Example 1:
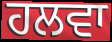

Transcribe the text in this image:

ਹਲਵਾ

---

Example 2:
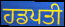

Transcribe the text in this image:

ਹਡਪਤੀ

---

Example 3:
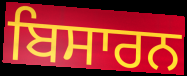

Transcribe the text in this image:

ਬਿਸਾਰਨ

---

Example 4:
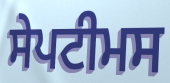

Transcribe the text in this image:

ਸੇਪਟੀਮਸ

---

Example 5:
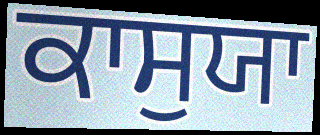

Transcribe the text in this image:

ਕਾਸੁਯਾ